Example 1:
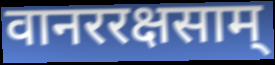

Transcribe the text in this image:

वानररक्षसाम्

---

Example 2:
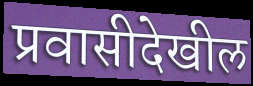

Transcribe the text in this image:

प्रवासीदेखील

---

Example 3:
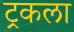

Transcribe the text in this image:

ट्रकला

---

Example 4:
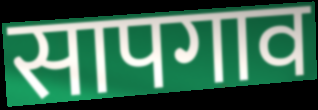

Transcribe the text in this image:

सापगाव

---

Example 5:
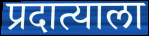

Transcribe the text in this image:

प्रदात्याला